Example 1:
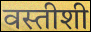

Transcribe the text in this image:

वस्‍तीशी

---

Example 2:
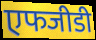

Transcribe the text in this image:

एफजीडी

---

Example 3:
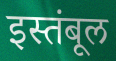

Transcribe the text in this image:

इस्तंबूल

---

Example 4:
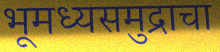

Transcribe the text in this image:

भूमध्यसमुद्राचा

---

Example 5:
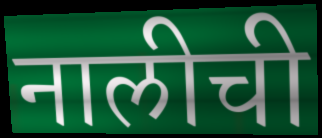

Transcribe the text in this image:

नालीची